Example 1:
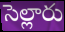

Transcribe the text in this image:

సెల్లారు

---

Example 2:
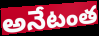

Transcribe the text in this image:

అనేటంత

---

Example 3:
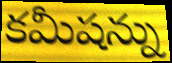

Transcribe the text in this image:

కమీషన్ను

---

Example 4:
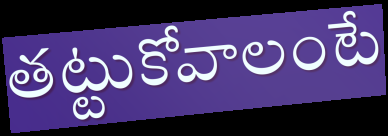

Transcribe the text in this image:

తట్టుకోవాలంటే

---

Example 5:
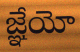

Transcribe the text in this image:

జ్ఞేయో